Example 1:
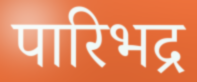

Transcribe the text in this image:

पारिभद्र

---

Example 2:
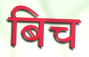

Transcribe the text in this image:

बिच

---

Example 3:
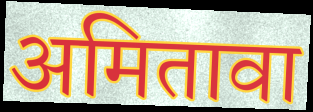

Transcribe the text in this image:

अमितावा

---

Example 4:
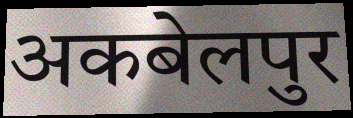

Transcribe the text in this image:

अकबेलपुर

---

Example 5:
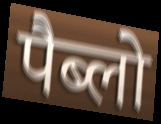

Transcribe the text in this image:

पैब्लो